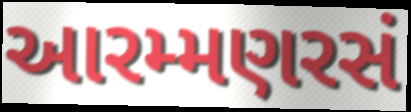
આરમ્મણરસં